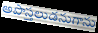
అపొస్తలుడనుగాను